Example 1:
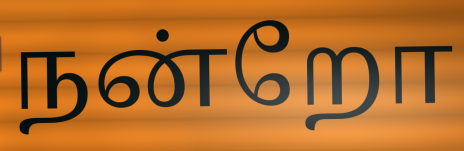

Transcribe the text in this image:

நன்றோ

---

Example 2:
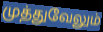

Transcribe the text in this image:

முத்துவேலும்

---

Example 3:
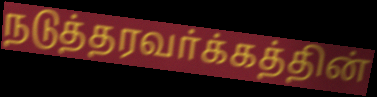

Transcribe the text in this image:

நடுத்தரவர்க்கத்தின்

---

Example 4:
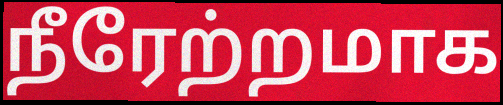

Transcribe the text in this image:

நீரேற்றமாக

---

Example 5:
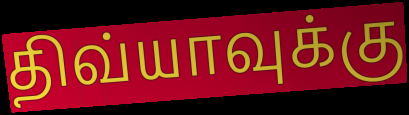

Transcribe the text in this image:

திவ்யாவுக்கு